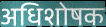
अधिशोषक